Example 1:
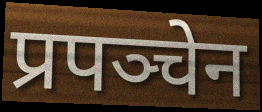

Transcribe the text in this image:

प्रपञ्चेन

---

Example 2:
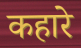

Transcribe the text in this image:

कहारे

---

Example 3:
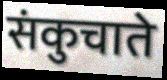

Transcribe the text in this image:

संकुचाते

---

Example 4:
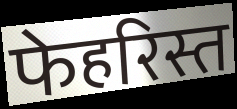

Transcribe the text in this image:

फेहरिस्त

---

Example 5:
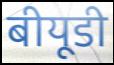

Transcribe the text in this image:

बीयूडी